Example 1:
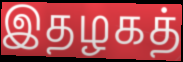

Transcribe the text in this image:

இதழகத்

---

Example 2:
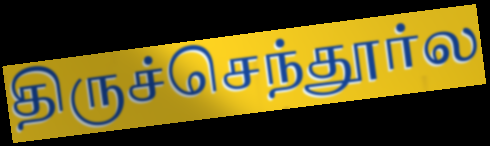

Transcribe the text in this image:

திருச்செந்தூர்ல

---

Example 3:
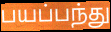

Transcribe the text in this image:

பயப்பந்து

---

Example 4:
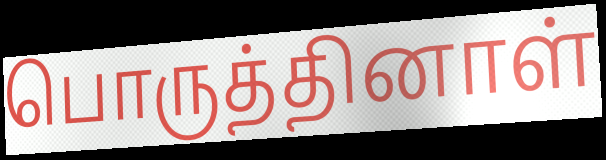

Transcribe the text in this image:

பொருத்தினாள்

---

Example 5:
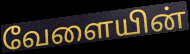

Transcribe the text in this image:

வேளையின்